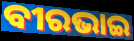
ବୀରଭାଇ